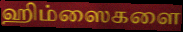
ஹிம்ஸைகளை